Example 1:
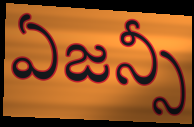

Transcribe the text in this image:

ఏజన్సీ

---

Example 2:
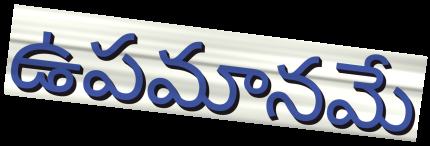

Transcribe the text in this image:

ఉపమానమే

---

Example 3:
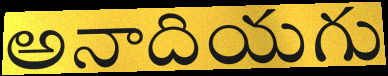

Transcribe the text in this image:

అనాదియగు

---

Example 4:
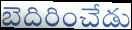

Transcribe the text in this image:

బెదిరించేడు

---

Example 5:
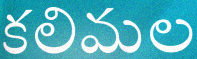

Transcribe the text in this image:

కలిమల